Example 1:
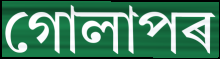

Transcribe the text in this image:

গোলাপৰ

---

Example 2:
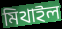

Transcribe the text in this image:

মিথাইল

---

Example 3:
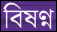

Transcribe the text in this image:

বিষণ্ন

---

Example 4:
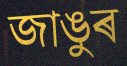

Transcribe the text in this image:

জাঙুৰ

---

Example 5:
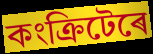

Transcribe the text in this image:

কংক্ৰিটেৰে